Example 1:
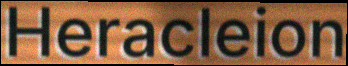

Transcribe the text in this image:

Heracleion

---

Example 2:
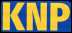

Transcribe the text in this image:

KNP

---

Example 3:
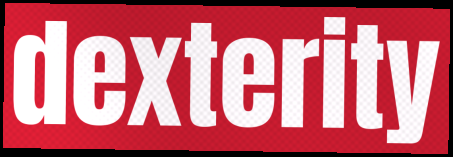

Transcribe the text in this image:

dexterity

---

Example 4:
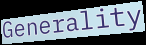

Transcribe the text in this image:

Generality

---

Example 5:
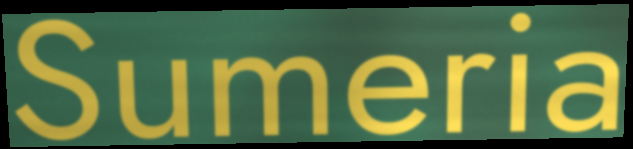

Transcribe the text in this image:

Sumeria